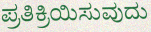
ಪ್ರತಿಕ್ರಿಯಿಸುವುದು